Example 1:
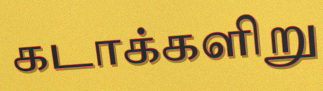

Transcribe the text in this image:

கடாக்களிறு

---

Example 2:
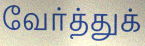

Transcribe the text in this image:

வேர்த்துக்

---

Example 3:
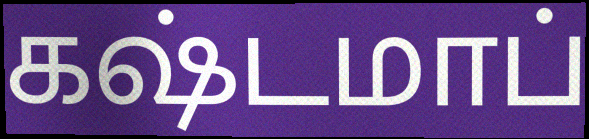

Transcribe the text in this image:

கஷ்டமாப்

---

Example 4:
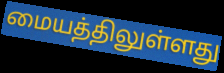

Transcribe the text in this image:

மையத்திலுள்ளது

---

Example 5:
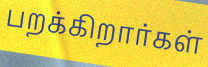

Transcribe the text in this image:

பறக்கிறார்கள்